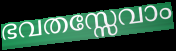
ഭവതസ്സേവാം